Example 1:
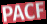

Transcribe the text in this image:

PACF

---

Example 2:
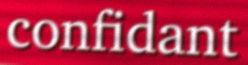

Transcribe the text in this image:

confidant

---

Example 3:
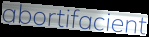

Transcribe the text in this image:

abortifacient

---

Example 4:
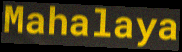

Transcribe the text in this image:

Mahalaya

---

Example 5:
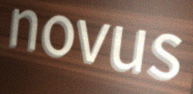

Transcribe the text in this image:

novus